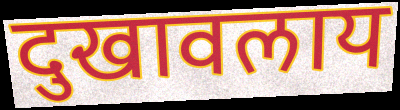
दुखावलाय